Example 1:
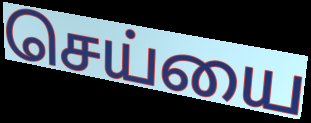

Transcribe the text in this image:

செய்யை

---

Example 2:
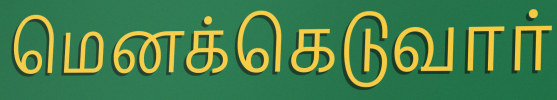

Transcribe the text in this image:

மெனக்கெடுவார்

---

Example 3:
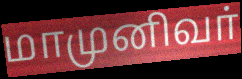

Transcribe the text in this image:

மாமுனிவர்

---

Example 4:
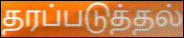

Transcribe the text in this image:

தரப்படுத்தல்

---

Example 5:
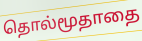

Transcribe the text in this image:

தொல்மூதாதை